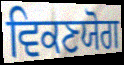
ਵਿਕਣਯੋਗ